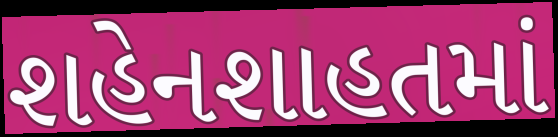
શહેનશાહતમાં